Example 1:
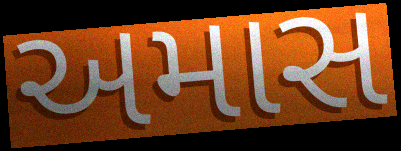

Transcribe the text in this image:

અમાસ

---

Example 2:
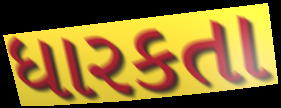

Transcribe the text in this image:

ધારકતા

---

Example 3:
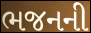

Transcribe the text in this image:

ભજનની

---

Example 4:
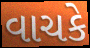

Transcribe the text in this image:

વાચકે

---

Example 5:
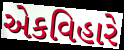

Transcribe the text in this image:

એકવિહારે